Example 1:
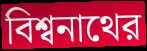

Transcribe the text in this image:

বিশ্বনাথের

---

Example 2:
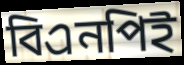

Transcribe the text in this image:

বিএনপিই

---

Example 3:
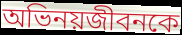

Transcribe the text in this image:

অভিনয়জীবনকে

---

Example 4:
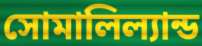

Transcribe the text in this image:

সোমালিল্যান্ড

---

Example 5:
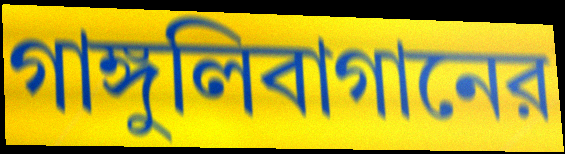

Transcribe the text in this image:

গাঙ্গুলিবাগানের